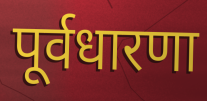
पूर्वधारणा